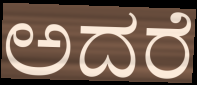
ಅದರೆ